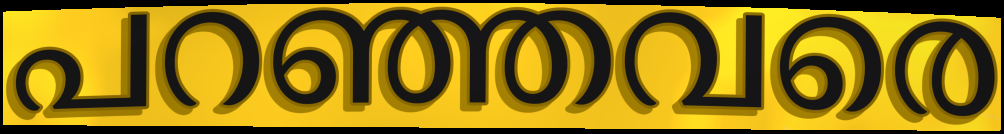
പറഞ്ഞവരെ